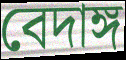
বেদাঙ্গ